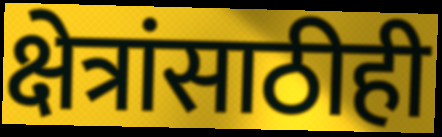
क्षेत्रांसाठीही